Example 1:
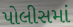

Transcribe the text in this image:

પોલીસમાં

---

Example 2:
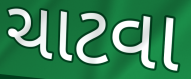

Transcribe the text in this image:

ચાટવા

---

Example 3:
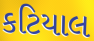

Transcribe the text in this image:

કટિયાલ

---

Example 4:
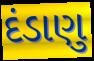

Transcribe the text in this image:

દંડાણુ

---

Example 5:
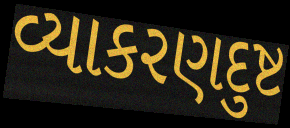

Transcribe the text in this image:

વ્યાકરણદુષ્ટ